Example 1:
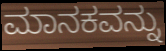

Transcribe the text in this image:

ಮಾನಕವನ್ನು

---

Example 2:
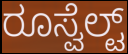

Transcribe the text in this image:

ರೂಸ್ವೆಲ್ಟ್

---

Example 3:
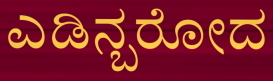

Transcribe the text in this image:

ಎಡಿನ್ಬರೋದ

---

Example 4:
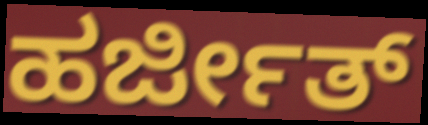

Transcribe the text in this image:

ಹರ್ಜೀತ್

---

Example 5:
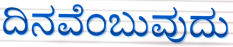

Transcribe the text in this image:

ದಿನವೆಂಬುವುದು